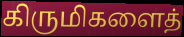
கிருமிகளைத்